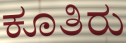
ಕೂತಿರು